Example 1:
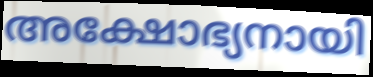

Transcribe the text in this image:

അക്ഷോഭ്യനായി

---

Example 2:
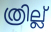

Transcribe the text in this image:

ത്രില്ല്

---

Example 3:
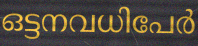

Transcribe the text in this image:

ഒട്ടനവധിപേർ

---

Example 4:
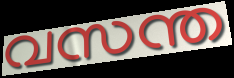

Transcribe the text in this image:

വസന്ത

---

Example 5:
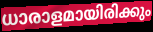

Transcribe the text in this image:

ധാരാളമായിരിക്കും